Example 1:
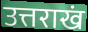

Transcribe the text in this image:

उत्तराखं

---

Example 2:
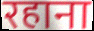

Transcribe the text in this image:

रहाना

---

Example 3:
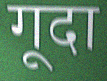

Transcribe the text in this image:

गूदा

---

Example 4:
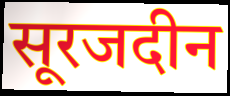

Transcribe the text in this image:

सूरजदीन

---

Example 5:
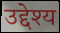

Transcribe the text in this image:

उद्देश्‍य